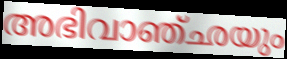
അഭിവാഞ്ഛയും